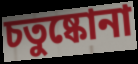
চতুষ্কোনা